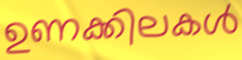
ഉണക്കിലകൾ